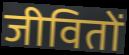
जीवितों